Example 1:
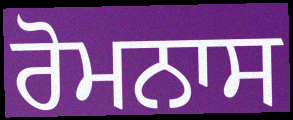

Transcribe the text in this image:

ਰੋਮਨਾਸ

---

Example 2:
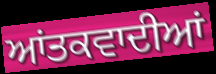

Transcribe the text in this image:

ਆਂਤਕਵਾਦੀਆਂ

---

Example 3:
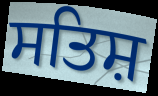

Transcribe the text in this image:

ਸਤਿਸ਼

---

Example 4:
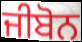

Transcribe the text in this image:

ਜੀਬੋਨ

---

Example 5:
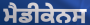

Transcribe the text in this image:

ਮੈਡੀਕੇਨਸ